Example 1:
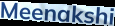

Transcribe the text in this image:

Meenakshi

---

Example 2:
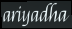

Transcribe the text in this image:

ariyadha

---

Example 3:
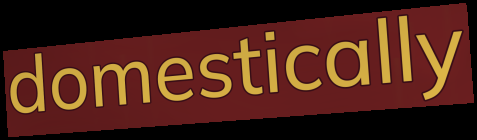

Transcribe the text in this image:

domestically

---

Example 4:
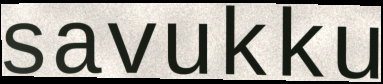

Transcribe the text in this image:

savukku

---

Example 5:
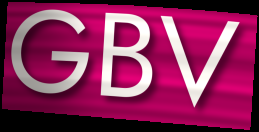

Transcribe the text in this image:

GBV